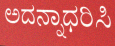
ಅದನ್ನಾಧರಿಸಿ